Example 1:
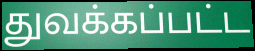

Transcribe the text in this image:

துவக்கப்பட்ட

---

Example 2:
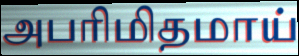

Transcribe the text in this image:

அபரிமிதமாய்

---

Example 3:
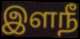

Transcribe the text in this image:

இளநீ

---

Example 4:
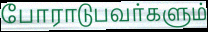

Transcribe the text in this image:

போராடுபவர்களும்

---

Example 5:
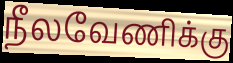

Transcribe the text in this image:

நீலவேணிக்கு